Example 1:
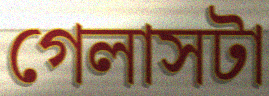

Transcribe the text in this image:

গেলাসটা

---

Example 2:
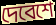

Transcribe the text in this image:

দেবেশে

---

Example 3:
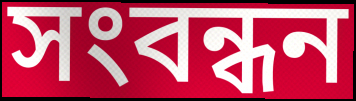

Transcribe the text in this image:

সংবন্ধন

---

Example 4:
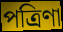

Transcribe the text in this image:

পত্রিণা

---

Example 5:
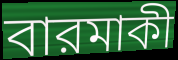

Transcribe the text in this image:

বারমাকী